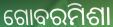
ଗୋବରମିଶା